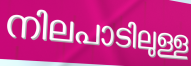
നിലപാടിലുള്ള